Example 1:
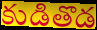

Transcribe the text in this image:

కుడితొడ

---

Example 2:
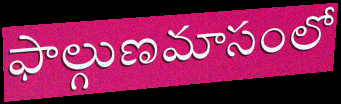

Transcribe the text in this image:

ఫాల్గుణమాసంలో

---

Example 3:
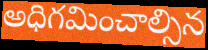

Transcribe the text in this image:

అధిగమించాల్సిన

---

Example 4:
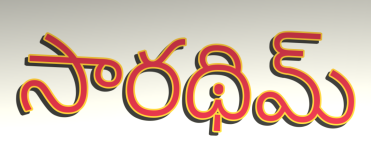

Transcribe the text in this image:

సారథిమ్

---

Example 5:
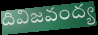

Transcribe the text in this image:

దివిజవంద్య